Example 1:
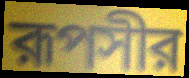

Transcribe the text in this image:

রূপসীর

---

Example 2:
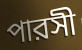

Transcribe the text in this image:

পারসী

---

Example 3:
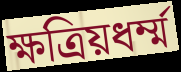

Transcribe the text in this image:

ক্ষত্রিয়ধর্ম্ম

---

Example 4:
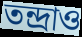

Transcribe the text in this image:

তন্দ্রাও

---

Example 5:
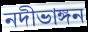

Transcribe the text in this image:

নদীভাঙ্গন